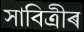
সাবিত্ৰীৰ